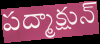
పద్మాక్షున్